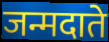
जन्मदाते